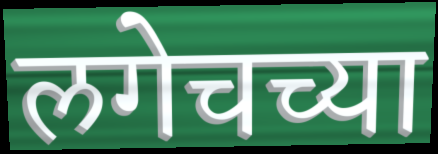
लगेचच्या